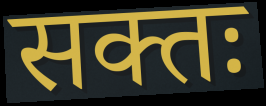
सक्तः